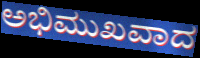
ಅಭಿಮುಖವಾದ